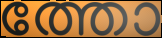
ത്തോ